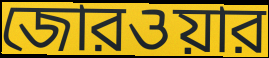
জোরওয়ার